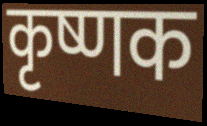
कृष्णक